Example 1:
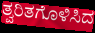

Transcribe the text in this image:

ತ್ವರಿತಗೊಳಿಸಿದ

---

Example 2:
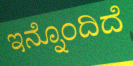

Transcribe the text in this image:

ಇನ್ನೊಂದಿದೆ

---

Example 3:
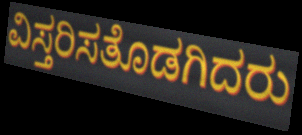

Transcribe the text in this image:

ವಿಸ್ತರಿಸತೊಡಗಿದರು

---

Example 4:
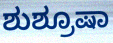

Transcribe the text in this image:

ಶುಶ್ರೂಷಾ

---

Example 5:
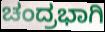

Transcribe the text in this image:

ಚಂದ್ರಭಾಗಿ